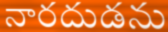
నారదుడను